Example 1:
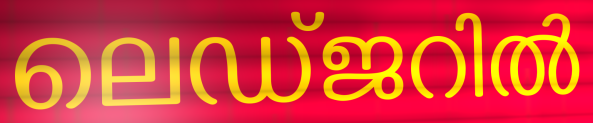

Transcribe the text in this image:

ലെഡ്ജറിൽ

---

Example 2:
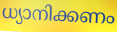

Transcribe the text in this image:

ധ്യാനിക്കണം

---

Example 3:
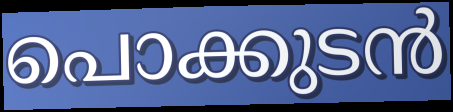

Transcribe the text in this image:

പൊക്കുടൻ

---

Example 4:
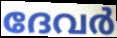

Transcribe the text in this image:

ദേവർ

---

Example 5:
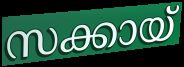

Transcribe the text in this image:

സക്കായ്